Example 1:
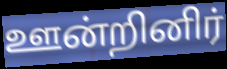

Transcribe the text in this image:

ஊன்றினிர்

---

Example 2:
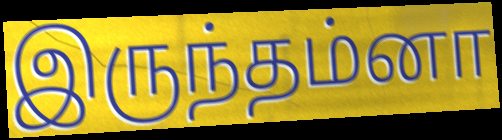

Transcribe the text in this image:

இருந்தம்னா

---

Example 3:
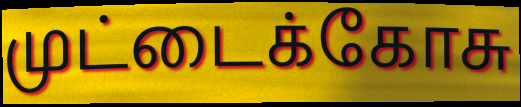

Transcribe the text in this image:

முட்டைக்கோசு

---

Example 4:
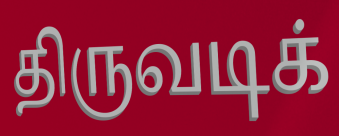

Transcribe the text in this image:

திருவடிக்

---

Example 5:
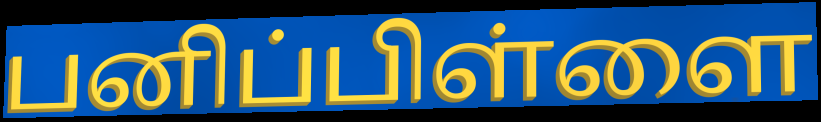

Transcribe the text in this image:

பனிப்பிள்ளை